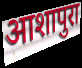
आशापुरा